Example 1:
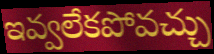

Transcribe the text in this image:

ఇవ్వలేకపోవచ్చు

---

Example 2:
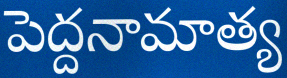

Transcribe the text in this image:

పెద్దనామాత్య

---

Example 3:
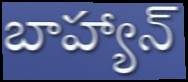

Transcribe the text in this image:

బాహ్యాన్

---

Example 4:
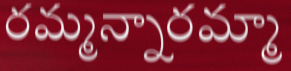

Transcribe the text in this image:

రమ్మన్నారమ్మా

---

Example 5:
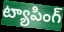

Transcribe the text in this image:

ట్యాపింగ్